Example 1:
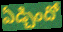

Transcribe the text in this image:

ఏడ్చిందో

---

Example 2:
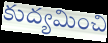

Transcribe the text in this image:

కుద్యమించి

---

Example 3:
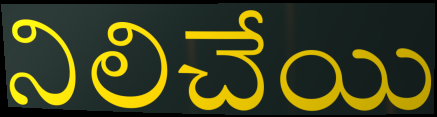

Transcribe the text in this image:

నిలిచేయి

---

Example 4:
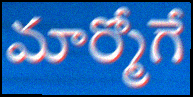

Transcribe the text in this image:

మార్మోగే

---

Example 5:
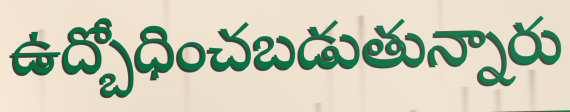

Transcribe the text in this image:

ఉద్బోధించబడుతున్నారు